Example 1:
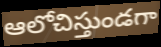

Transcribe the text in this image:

ఆలోచిస్తుండగా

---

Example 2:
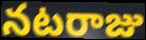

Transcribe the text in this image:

నటరాజు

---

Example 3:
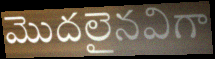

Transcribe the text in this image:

మొదలైనవిగా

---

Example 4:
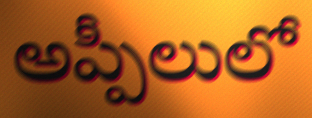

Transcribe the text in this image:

అప్పీలులో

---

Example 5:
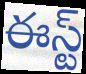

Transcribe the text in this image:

ఈస్ట్